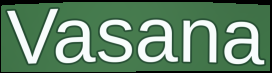
Vasana